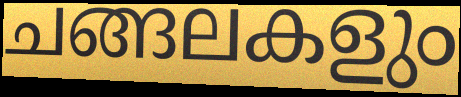
ചങ്ങലകളും